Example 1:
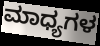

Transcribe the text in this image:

ಮಾಧ್ಯಗಳ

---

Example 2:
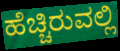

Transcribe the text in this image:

ಹೆಚ್ಚಿರುವಲ್ಲಿ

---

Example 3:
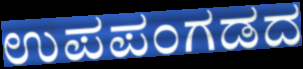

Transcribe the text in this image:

ಉಪಪಂಗಡದ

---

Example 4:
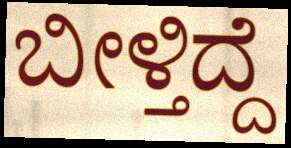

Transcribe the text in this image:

ಬೀಳ್ತಿದ್ದೆ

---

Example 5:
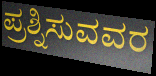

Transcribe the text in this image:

ಪ್ರಶ್ನಿಸುವವರ